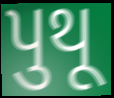
પુથૂ